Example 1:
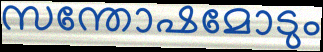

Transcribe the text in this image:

സന്തോഷമോടും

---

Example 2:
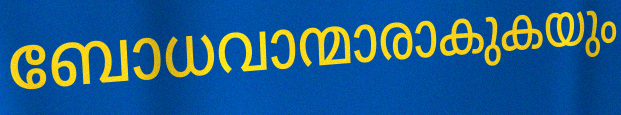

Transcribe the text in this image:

ബോധവാന്മാരാകുകയും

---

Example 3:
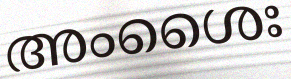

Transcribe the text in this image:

അംശൈഃ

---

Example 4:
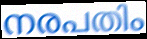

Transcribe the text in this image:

നരപതിം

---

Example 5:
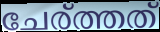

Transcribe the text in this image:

ചേര്ത്തത്